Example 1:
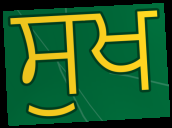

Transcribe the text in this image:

ਸੁਖ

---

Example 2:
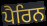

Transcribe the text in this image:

ਪੈਰਿਨ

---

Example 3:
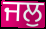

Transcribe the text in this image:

ਜਲੁ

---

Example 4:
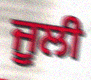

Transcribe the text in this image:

ਜੂਲੀ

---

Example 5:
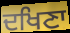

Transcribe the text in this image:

ਦਖਿਣਾ